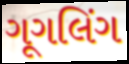
ગૂગલિંગ